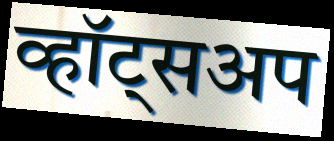
व्हॉट्सअप